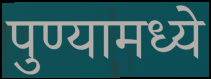
पुण्यामध्ये